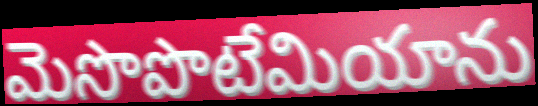
మెసొపొటేమియాను